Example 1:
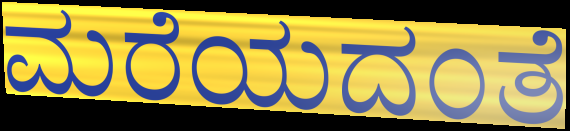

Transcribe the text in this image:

ಮರೆಯದಂತೆ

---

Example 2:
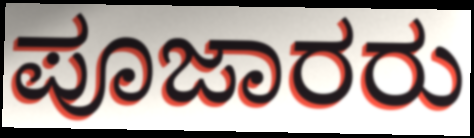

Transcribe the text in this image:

ಪೂಜಾರರು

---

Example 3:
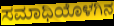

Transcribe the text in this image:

ಸಮಾಧಿಯೊಳಗಿನ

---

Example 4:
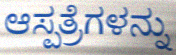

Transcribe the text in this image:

ಆಸ್ಪತ್ರೆಗಳನ್ನು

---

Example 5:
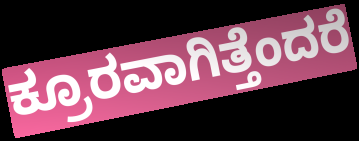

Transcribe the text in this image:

ಕ್ರೂರವಾಗಿತ್ತೆಂದರೆ